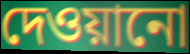
দেওয়ানো